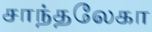
சாந்தலேகா